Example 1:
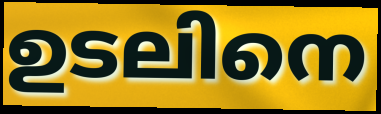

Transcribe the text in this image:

ഉടലിനെ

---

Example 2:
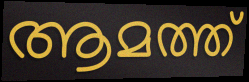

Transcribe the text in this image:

ആമത്ത്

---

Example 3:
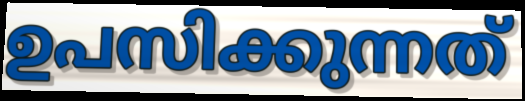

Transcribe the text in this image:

ഉപസിക്കുന്നത്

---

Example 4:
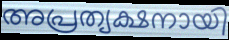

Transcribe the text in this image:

അപ്രത്യക്ഷനായി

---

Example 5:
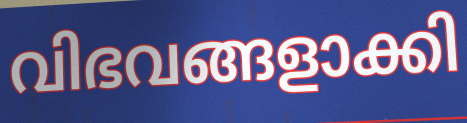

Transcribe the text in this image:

വിഭവങ്ങളാക്കി